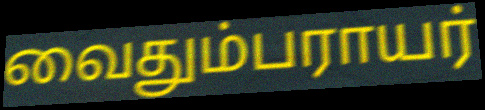
வைதும்பராயர்